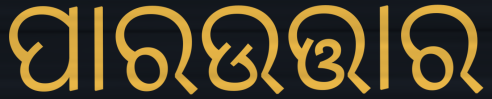
ପାରଉତ୍ତାର